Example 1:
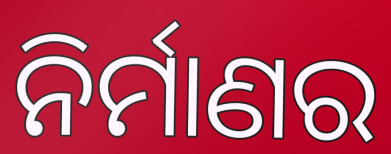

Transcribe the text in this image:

ନିର୍ମାଣର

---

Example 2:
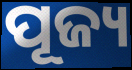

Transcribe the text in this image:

ପୂଜ୍ୟ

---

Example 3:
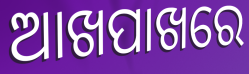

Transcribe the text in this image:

ଆଖପାଖରେ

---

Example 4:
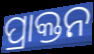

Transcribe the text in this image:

ପ୍ରାକ୍ତନ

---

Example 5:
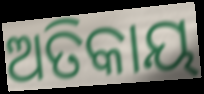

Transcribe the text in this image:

ଅତିକାୟ